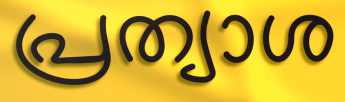
പ്രത്യാശ